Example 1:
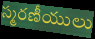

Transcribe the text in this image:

స్మరణీయులు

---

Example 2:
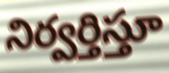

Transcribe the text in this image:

నిర్వర్తిస్తూ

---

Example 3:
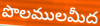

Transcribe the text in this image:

పొలములమీద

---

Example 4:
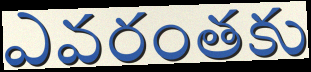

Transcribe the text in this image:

ఎవరంతకు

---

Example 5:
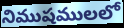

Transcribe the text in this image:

నిముషములలో